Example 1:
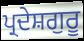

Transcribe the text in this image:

ਪ੍ਰਦੇਸ਼ਗੁਰੂ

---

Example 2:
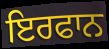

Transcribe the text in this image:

ਇਰਫਾਨ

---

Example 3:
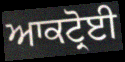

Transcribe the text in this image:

ਆਕਟ੍ਰੋਈ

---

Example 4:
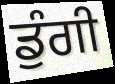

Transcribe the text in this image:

ਡੁੰਗੀ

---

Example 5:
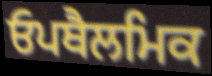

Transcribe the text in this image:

ਓਪਥੈਲਮਿਕ